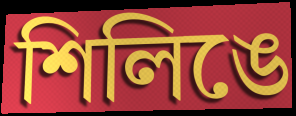
শিলিঙে